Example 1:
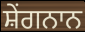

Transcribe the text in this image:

ਸ਼ੇਂਗਨਾਨ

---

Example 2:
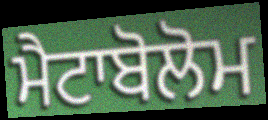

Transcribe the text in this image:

ਮੈਟਾਬੋਲੋਮ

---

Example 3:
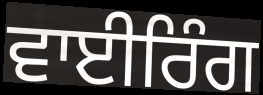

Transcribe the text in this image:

ਵਾਈਰਿੰਗ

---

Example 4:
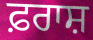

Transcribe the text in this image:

ਫ਼ਰਾਸ਼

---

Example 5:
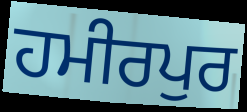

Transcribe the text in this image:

ਹਮੀਰਪੁਰ